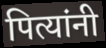
पित्यांनी